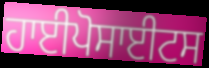
ਹਾਈਪੋਸਾਈਟਸ